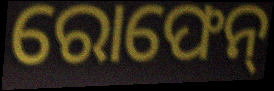
ରୋଫେନ୍